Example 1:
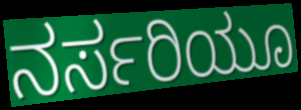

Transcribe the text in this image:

ನರ್ಸರಿಯೂ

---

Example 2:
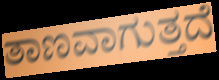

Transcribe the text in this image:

ತಾಣವಾಗುತ್ತದೆ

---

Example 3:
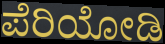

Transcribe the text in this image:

ಪೆರಿಯೋಡಿ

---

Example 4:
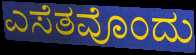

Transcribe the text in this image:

ಎಸೆತವೊಂದು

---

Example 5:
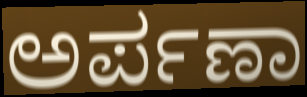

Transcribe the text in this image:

ಅರ್ಪಣಾ